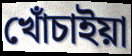
খোঁচাইয়া